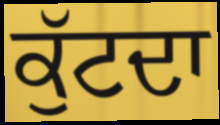
ਕੁੱਟਦਾ